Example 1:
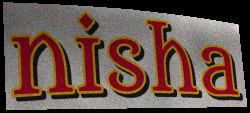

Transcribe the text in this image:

nisha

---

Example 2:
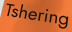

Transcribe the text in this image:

Tshering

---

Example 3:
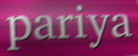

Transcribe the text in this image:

pariya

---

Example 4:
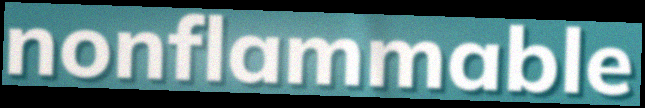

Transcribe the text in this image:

nonflammable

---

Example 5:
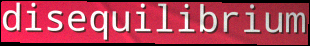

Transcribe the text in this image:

disequilibrium